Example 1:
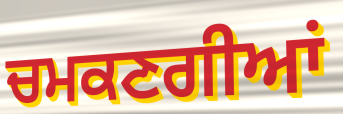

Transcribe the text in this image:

ਚਮਕਣਗੀਆਂ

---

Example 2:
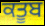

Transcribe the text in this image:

ਕਤੂਬ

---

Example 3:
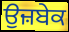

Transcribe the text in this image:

ਉਜ਼ਬੇਕ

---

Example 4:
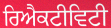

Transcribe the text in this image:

ਰਿਐਕਟੀਵਿਟੀ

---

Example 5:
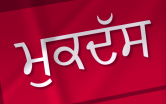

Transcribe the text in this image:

ਮੁਕਦੱਸ